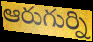
ఆరుగుర్ని